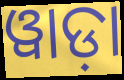
ୱାଡ଼ା